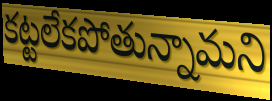
కట్టలేకపోతున్నామని